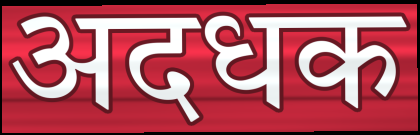
अदधक